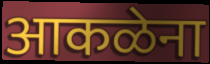
आकळेना